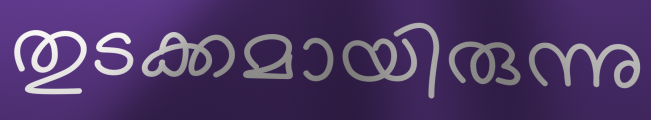
തുടക്കമായിരുന്നു